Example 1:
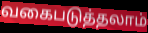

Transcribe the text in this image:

வகைபடுத்தலாம்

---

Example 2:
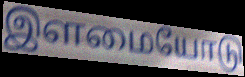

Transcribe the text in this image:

இளமையோடு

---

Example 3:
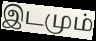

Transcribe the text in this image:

இடமும்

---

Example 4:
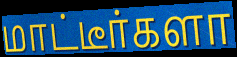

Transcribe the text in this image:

மாட்டீர்களா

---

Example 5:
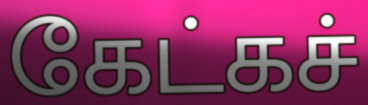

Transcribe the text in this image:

கேட்கச்